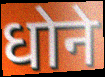
धोने